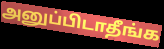
அனுப்பிடாதீங்க